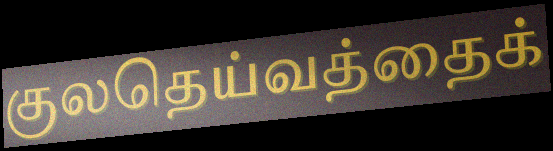
குலதெய்வத்தைக்